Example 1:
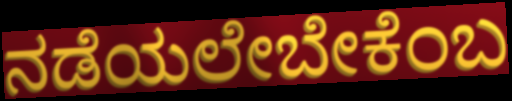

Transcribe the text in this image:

ನಡೆಯಲೇಬೇಕೆಂಬ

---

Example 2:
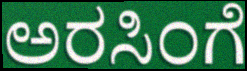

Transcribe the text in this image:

ಅರಸಿಂಗೆ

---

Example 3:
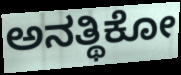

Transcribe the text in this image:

ಅನತ್ಥಿಕೋ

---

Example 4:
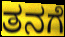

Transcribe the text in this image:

ತನಗೆ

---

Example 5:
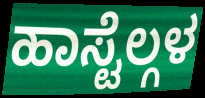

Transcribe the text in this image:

ಹಾಸ್ಟೆಲ್ಗಳ